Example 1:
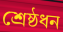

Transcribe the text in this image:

শ্রেষ্ঠধন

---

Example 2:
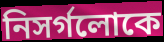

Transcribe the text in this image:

নিসর্গলোকে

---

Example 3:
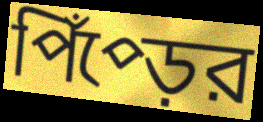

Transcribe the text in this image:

পিঁপ্ড়ের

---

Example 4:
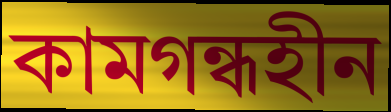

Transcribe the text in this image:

কামগন্ধহীন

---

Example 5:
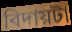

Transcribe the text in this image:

বিদায়টা